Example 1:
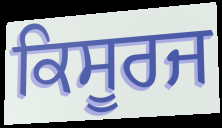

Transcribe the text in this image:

ਕਿਸੂਰਜ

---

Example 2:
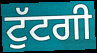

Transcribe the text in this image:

ਟੁੱਟਗੀ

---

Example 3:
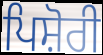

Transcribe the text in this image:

ਪਿਸ਼ੋਰੀ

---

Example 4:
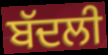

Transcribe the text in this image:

ਬੱਦਲੀ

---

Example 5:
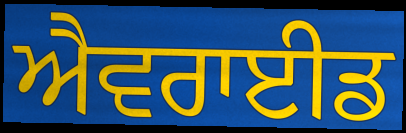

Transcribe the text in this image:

ਐਵਰਾਈਡ